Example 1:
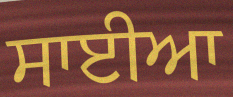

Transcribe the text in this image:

ਸਾਈਆ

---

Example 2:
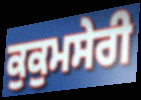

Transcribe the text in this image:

ਕੁਕੁਮਸੇਰੀ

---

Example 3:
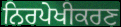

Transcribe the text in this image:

ਨਿਰਪੇਖੀਕਰਣ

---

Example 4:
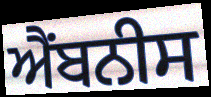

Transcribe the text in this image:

ਐਂਬਨੀਸ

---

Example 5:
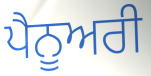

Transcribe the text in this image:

ਪੈਨੂਅਰੀ